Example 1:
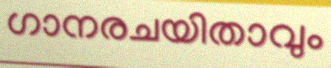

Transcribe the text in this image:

ഗാനരചയിതാവും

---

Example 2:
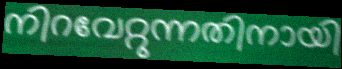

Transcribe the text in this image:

നിറവേറ്റുന്നതിനായി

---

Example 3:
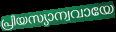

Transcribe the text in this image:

പ്രിയസ്യാന്വവായേ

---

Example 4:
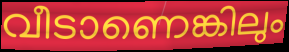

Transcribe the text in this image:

വീടാണെങ്കിലും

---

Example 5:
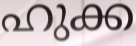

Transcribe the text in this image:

ഹുക്ക